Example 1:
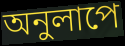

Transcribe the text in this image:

অনুলাপে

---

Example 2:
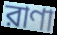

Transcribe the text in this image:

রাণা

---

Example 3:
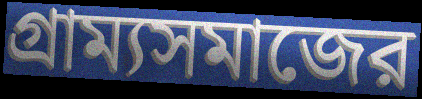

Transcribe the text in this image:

গ্রাম্যসমাজের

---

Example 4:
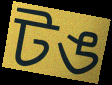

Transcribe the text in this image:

টঙ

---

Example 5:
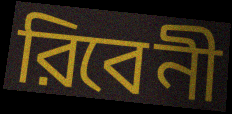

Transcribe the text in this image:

রিবেনী